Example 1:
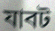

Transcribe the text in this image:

যাবট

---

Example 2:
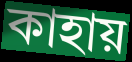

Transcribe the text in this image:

কাহায়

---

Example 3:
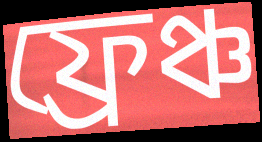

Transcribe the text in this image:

ফ্রেঞ্চ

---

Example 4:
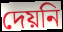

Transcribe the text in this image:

দেয়নি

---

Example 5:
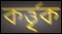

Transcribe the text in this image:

কর্ত্তৃক